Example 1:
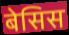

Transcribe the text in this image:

बेसिस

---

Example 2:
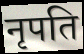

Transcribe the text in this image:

नृपति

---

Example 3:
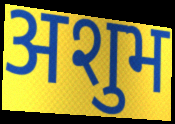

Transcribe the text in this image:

अशुभ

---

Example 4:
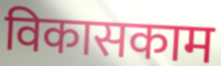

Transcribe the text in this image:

विकासकाम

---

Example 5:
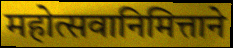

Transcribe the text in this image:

महोत्सवानिमित्ताने